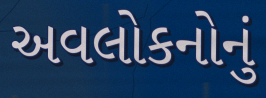
અવલોકનોનું